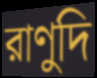
রাণুদি